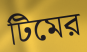
টিমের